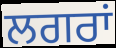
ਲਗਰਾਂ